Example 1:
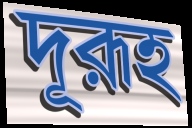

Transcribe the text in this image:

দূরূহ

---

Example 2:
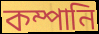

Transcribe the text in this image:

কম্পানি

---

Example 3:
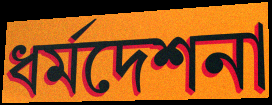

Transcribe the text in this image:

ধর্মদেশনা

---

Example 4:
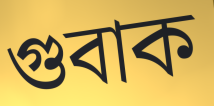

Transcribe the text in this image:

গুবাক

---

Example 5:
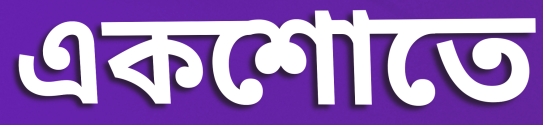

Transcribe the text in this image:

একশোতে